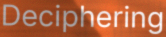
Deciphering